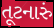
તૂટનારું